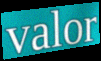
valor